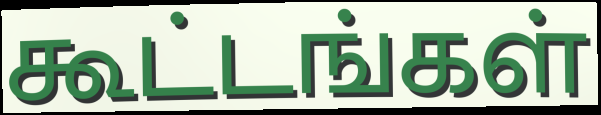
கூட்டங்கள்